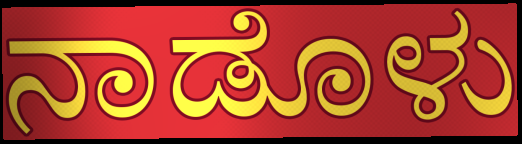
ನಾಡೊಳು